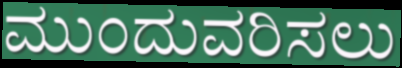
ಮುಂದುವರಿಸಲು